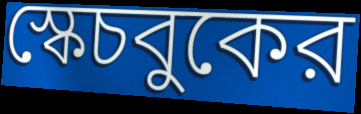
স্কেচবুকের